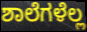
ಶಾಲೆಗಳೆಲ್ಲ